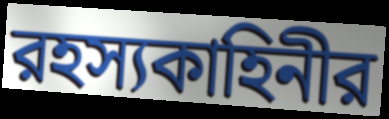
রহস্যকাহিনীর